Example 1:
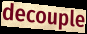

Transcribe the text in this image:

decouple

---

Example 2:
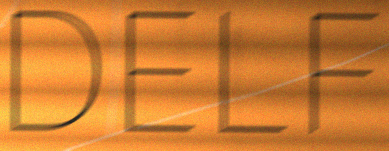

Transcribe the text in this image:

DELF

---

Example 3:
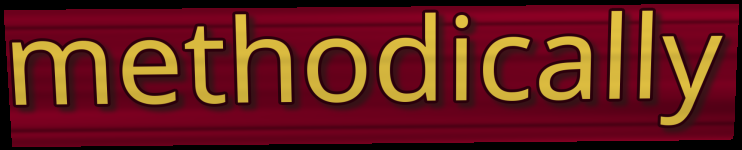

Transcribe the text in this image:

methodically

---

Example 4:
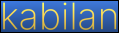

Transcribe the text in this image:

kabilan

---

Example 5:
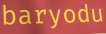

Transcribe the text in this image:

baryodu